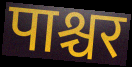
पाश्चर